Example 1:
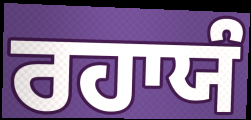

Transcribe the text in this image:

ਰਹਾਯੰ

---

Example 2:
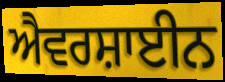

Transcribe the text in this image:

ਐਵਰਸ਼ਾਈਨ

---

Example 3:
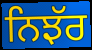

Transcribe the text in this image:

ਨਿਝੱਰ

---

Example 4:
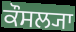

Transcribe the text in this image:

ਕੌਸਲ੍ਯਾ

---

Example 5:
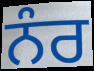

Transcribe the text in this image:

ਨੰਰ